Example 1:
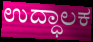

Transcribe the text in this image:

ಉದ್ಧಾಲಕ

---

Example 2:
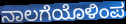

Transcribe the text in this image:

ನಾಲಗೆಯೊಳಿಂಪ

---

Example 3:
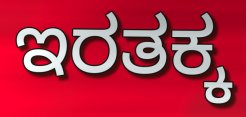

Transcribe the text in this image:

ಇರತಕ್ಕ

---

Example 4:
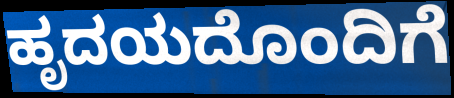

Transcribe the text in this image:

ಹೃದಯದೊಂದಿಗೆ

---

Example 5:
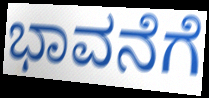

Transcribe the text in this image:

ಭಾವನೆಗೆ